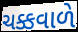
ચક્કવાળે